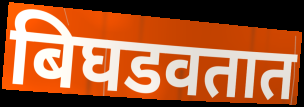
बिघडवतात